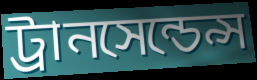
ট্রানসেন্ডেন্স